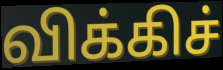
விக்கிச்